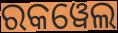
ରକୱେଲ